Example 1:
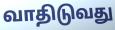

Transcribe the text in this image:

வாதிடுவது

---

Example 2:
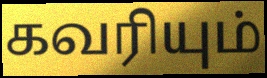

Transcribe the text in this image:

கவரியும்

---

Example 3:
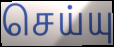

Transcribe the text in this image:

செய்யு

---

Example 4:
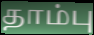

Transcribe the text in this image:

தாம்பு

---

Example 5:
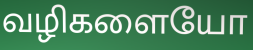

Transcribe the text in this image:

வழிகளையோ